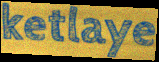
ketlaye